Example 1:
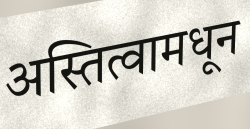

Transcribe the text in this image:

अस्तित्वामधून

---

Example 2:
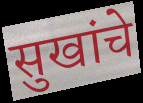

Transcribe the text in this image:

सुखांचे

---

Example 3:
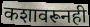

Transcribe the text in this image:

कशावरूनही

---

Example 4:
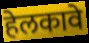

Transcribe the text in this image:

हेलकावे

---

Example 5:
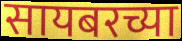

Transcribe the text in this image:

सायबरच्या